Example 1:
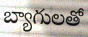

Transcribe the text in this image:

బ్యాగులతో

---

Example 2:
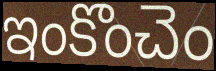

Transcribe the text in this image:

ఇంకొంచెం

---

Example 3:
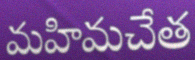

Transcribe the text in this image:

మహిమచేత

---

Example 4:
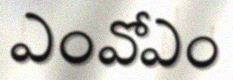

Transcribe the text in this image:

ఎంవోఎం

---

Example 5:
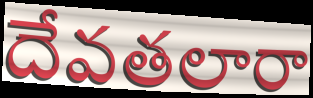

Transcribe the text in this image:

దేవతలారా